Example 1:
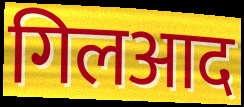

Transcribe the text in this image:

गिलआद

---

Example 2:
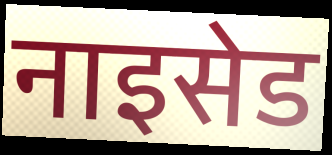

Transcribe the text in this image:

नाइसेड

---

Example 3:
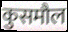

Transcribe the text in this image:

कुसमौल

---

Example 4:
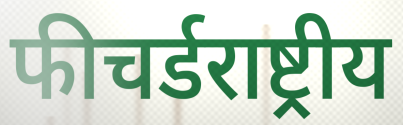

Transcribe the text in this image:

फीचर्डराष्ट्रीय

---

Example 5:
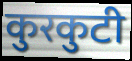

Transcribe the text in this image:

कुरकुटी